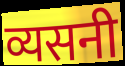
व्यसनी